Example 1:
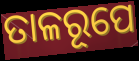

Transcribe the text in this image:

ତାଳରୂପେ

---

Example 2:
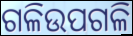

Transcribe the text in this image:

ଗଳିଉପଗଳି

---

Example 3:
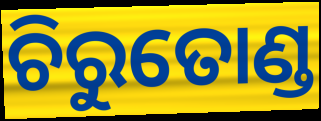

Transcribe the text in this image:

ଚିରୁତୋଣ୍ଡ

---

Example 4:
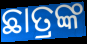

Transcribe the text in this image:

ଛାତ୍ରଙ୍କ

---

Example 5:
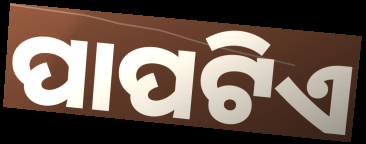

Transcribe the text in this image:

ପାପଟିଏ